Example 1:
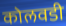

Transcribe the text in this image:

कोलवडी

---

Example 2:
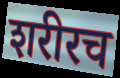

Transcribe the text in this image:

शरीरच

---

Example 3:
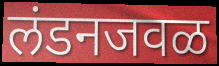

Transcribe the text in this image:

लंडनजवळ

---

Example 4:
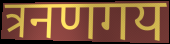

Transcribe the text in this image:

त्रनणगय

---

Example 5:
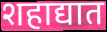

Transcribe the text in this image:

शहाद्यात